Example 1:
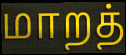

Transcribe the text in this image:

மாறத்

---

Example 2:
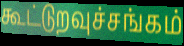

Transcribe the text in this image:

கூட்டுறவுச்சங்கம்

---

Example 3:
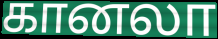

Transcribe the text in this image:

கானலா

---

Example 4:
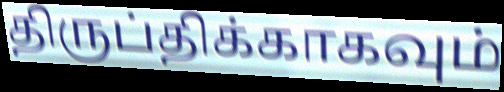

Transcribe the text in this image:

திருப்திக்காகவும்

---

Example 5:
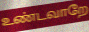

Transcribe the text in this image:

உண்டவாறே